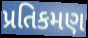
પ્રતિકમણ